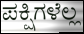
ಪಕ್ಷಿಗಳೆಲ್ಲ